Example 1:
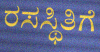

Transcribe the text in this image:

ರಸಸ್ಥಿತಿಗೆ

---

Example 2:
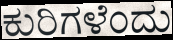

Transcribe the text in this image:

ಕುರಿಗಳೆಂದು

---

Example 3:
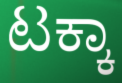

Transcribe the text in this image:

ಟಕ್ಕಾ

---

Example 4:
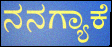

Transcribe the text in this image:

ನನಗ್ಯಾಕೆ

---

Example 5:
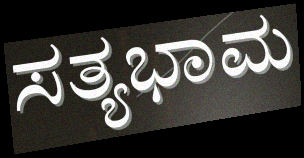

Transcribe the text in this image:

ಸತ್ಯಭಾಮ